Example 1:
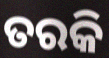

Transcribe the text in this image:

ତରକି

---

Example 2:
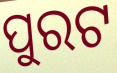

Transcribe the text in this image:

ପୁରଟ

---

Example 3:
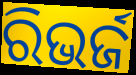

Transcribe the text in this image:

ରିଭର୍ଜ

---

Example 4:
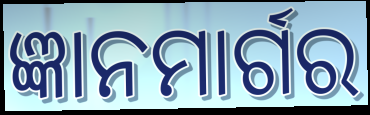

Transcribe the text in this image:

ଜ୍ଞାନମାର୍ଗର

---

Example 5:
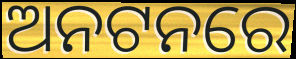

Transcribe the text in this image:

ଅନଟନରେ